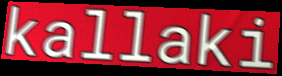
kallaki